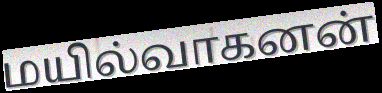
மயில்வாகனன்